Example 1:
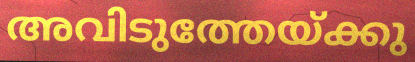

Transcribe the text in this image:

അവിടുത്തേയ്ക്കു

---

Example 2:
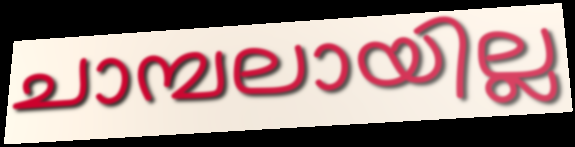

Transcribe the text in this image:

ചാമ്പലായില്ല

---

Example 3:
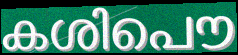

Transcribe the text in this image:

കശിപൌ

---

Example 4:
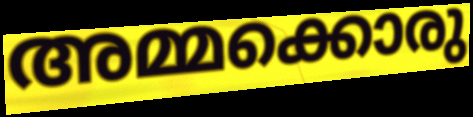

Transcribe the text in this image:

അമ്മക്കൊരു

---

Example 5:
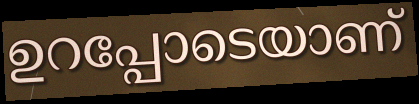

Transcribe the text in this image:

ഉറപ്പോടെയാണ്